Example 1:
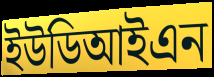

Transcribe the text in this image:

ইউডিআইএন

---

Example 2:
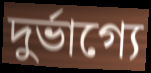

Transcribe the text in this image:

দুর্ভাগ্যে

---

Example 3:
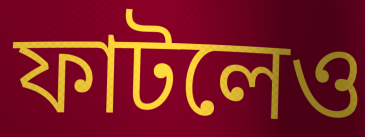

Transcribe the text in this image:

ফাটলেও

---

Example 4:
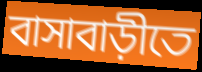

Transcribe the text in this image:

বাসাবাড়ীতে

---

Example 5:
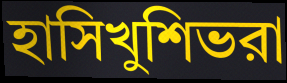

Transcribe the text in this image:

হাসিখুশিভরা